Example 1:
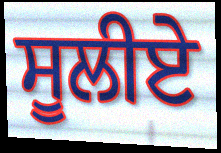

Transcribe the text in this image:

ਸੂਲੀਏ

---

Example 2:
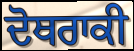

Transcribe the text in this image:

ਦੋਥਰਾਕੀ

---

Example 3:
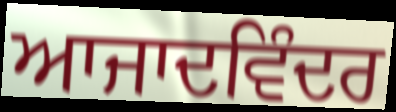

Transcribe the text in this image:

ਆਜਾਦਵਿੰਦਰ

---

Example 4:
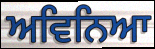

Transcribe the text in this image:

ਅਵਿਨਿਆ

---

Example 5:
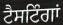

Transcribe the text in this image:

ਟੈਸਟਿੰਗਾਂ